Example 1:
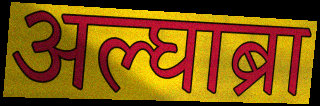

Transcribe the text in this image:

अल्घाब्रा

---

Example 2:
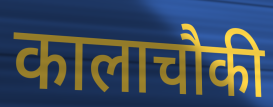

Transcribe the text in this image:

कालाचौकी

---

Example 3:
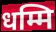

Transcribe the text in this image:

धम्मि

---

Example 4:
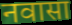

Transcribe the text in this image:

नवासा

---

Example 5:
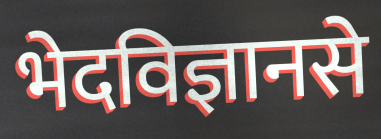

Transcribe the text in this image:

भेदविज्ञानसे